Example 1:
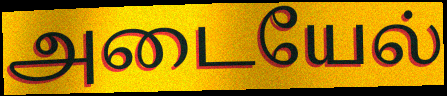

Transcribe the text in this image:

அடையேல்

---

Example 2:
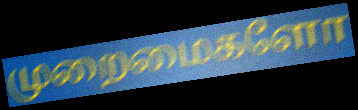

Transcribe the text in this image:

முறைமைகளோ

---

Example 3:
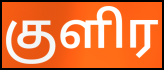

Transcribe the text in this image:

குளிர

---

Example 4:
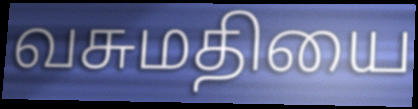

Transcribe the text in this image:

வசுமதியை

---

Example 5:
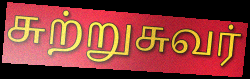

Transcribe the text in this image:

சுற்றுசுவர்